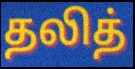
தலித்